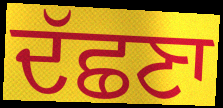
ਦੱਛਣਾ